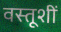
वस्तूशीं